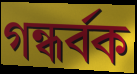
গন্ধৰ্বক